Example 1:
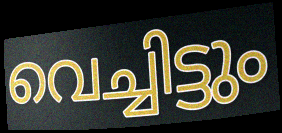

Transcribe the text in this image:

വെച്ചിട്ടും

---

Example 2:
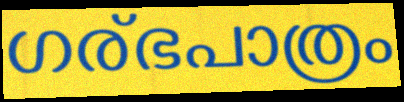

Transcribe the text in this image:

ഗര്ഭപാത്രം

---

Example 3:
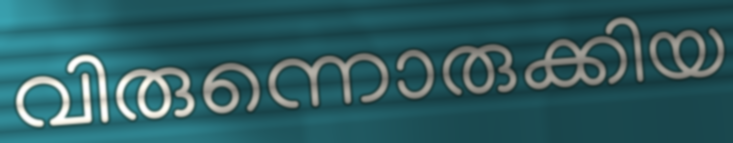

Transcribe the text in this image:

വിരുന്നൊരുക്കിയ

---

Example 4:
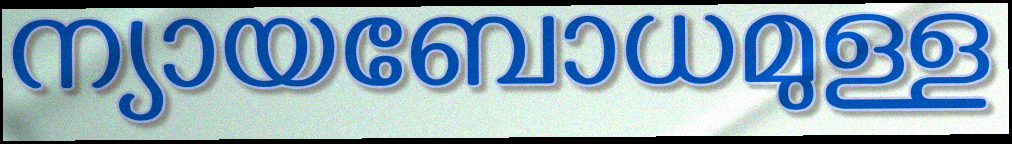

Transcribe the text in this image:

ന്യായബോധമുള്ള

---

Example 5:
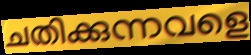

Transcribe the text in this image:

ചതിക്കുന്നവളെ